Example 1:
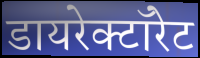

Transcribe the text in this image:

डायरेक्टॉरेट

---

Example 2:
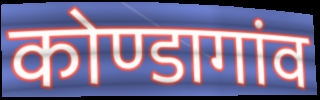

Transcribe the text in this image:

कोण्डागांव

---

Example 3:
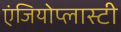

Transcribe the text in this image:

एंजियोप्लास्टी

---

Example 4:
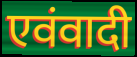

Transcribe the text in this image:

एवंवादी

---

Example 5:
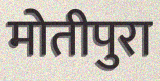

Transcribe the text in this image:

मोतीपुरा